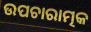
ଉପଚାରାତ୍ମକ